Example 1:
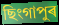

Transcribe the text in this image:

ছিংগাপুৰ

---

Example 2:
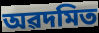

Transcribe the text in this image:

অৱদমিত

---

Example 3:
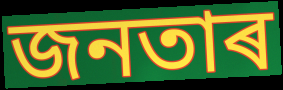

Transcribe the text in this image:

জনতাৰ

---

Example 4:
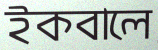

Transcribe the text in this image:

ইকবালে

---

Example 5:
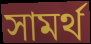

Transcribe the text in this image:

সামৰ্থ